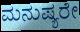
ಮನುಷ್ಯರೇ